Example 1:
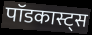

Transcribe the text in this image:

पॉडकास्ट्स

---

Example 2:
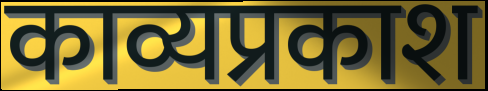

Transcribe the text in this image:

काव्यप्रकाश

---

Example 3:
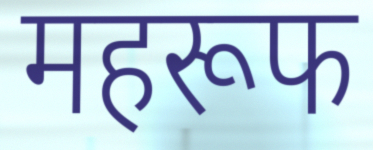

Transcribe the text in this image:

महरूफ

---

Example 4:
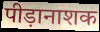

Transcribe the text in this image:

पीड़ानाशक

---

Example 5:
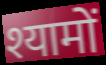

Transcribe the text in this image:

श्यामों